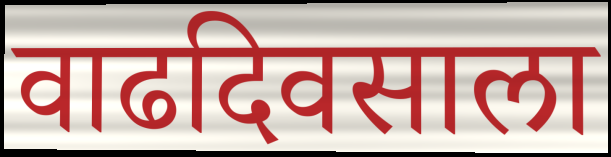
वाढदिवसाला